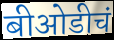
बीओडीचं